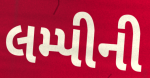
લમ્પીની